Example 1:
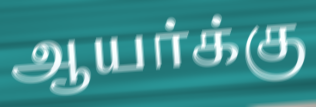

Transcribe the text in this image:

ஆயர்க்கு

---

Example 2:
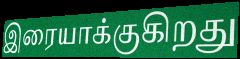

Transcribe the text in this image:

இரையாக்குகிறது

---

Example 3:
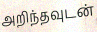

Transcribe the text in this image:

அறிந்தவுடன்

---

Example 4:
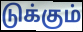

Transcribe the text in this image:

டுக்கும்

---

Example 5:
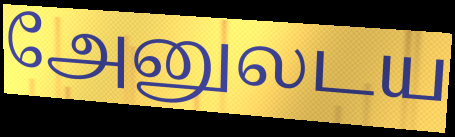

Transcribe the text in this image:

அேனுலடய